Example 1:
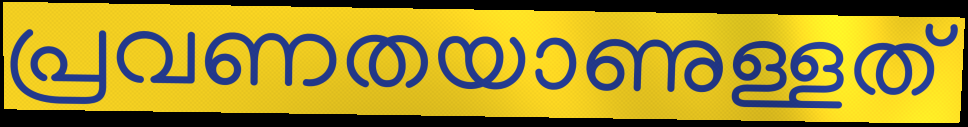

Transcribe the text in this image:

പ്രവണതയാണുള്ളത്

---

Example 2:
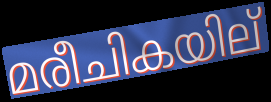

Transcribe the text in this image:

മരീചികയില്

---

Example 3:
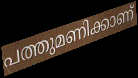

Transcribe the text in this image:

പത്തുമണിക്കാണ്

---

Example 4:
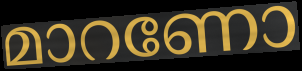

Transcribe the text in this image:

മാറണോ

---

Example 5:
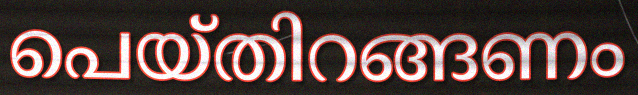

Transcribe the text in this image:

പെയ്തിറങ്ങണം